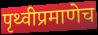
पृथ्वीप्रमाणेच